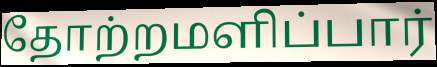
தோற்றமளிப்பார்